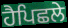
ਹੈਪਿਛਲੇ